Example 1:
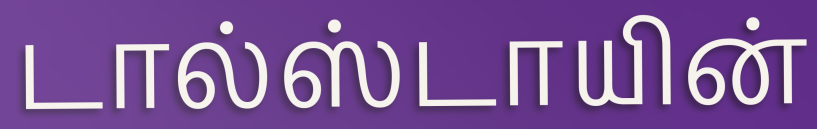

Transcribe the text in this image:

டால்ஸ்டாயின்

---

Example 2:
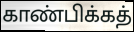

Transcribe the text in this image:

காண்பிக்கத்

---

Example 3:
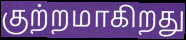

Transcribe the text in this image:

குற்றமாகிறது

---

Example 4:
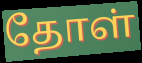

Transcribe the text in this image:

தோள்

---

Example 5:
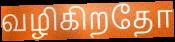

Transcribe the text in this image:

வழிகிறதோ